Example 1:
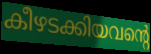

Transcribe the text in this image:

കീഴടക്കിയവന്റെ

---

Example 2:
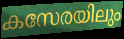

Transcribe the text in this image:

കസേരയിലും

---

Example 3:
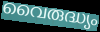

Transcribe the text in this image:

വൈരുദ്ധ്യം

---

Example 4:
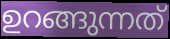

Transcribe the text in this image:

ഉറങ്ങുന്നത്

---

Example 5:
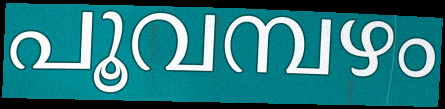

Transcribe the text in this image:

പൂവമ്പഴം